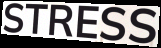
STRESS